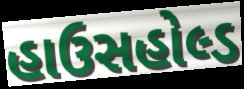
હાઉસહોલ્ડ